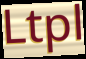
Ltpl